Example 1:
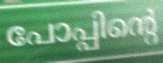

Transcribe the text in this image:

പോപ്പിന്റെ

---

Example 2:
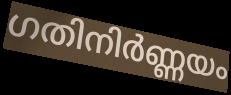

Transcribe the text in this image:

ഗതിനിർണ്ണയം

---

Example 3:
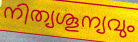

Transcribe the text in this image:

നിത്യശൂന്യവും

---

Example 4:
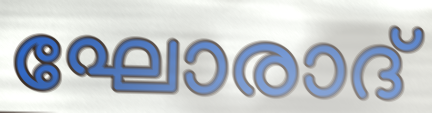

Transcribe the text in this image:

ഘോരാദ്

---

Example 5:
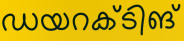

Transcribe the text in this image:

ഡയറക്ടിങ്